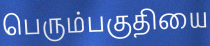
பெரும்பகுதியை